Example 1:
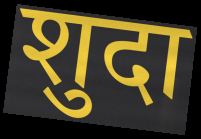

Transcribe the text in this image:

शुदा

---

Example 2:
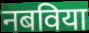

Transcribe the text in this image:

नबविया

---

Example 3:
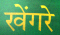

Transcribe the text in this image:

खेंगरे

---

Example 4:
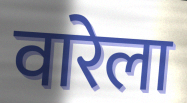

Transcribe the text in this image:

वारेला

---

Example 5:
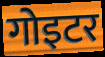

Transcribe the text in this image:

गोइटर